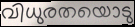
വിധുരതയൊടു